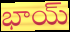
భాయ్